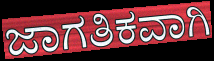
ಜಾಗತಿಕವಾಗಿ